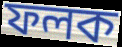
ফলক